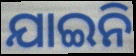
ଯାଇନି